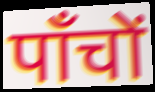
पाँचों